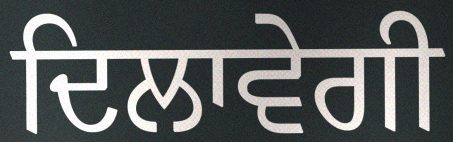
ਦਿਲਾਵੇਗੀ